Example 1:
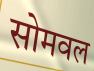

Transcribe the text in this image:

सोमवल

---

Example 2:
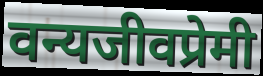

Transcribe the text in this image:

वन्यजीवप्रेमी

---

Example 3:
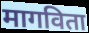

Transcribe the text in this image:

मागविता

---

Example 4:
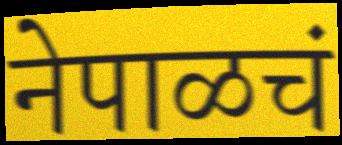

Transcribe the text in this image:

नेपाळचं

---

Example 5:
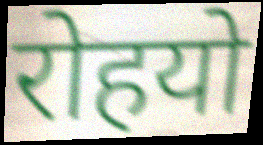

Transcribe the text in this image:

रोहयो